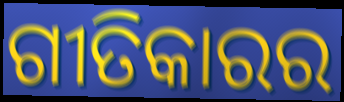
ଗୀତିକାରର